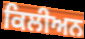
ਕਿਲੀਅਨ